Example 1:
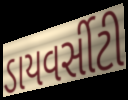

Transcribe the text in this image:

ડાયવર્સીટી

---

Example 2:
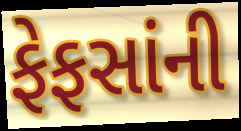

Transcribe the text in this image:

ફેફસાંની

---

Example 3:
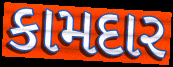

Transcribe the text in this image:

કામદાર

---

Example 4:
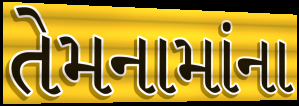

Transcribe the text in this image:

તેમનામાંના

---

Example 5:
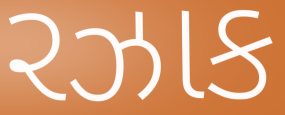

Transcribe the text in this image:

રઝાક